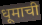
धूमाची